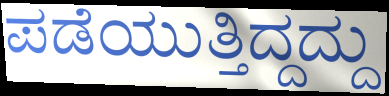
ಪಡೆಯುತ್ತಿದ್ದದ್ದು